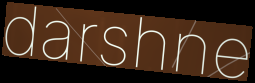
darshne